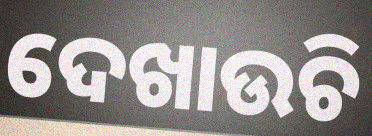
ଦେଖାଉଚି